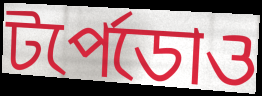
টর্পেডোও